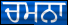
ਚਮਨਾ